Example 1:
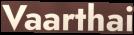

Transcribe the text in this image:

Vaarthai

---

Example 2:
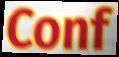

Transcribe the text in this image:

Conf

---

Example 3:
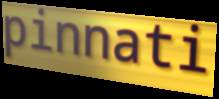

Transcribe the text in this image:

pinnati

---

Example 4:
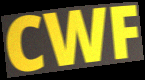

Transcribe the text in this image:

CWF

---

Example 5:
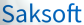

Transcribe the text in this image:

Saksoft